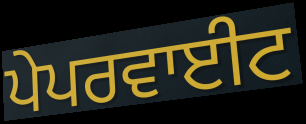
ਪੇਪਰਵਾਈਟ